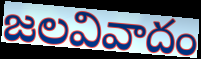
జలవివాదం